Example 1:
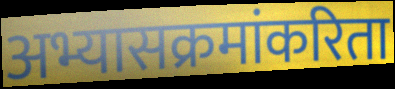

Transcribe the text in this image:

अभ्यासक्रमांकरिता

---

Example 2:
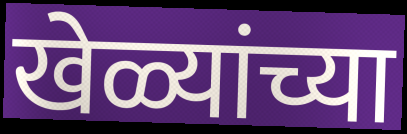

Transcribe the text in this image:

खेळ्यांच्या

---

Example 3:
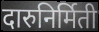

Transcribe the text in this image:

दारुनिर्मिती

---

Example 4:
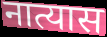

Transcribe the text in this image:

नात्यास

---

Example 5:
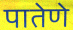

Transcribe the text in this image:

पातेणे